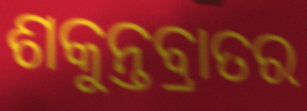
ଶକୁନ୍ତବ୍ରାତର